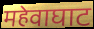
महेवाघाट